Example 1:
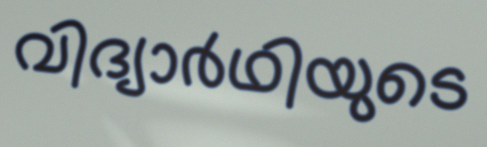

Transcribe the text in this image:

വിദ്യാർഥിയുടെ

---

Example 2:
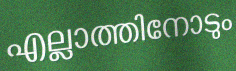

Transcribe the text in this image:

എല്ലാത്തിനോടും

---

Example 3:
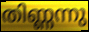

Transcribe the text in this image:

തിണ്ണന്നു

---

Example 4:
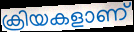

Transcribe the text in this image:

ക്രിയകളാണ്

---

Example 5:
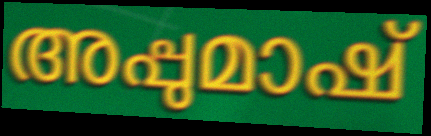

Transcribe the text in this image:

അപ്പുമാഷ്